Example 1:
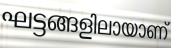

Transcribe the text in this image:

ഘട്ടങ്ങളിലായാണ്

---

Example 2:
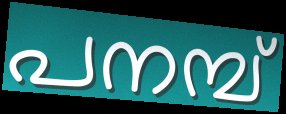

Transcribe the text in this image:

പനമ്പ്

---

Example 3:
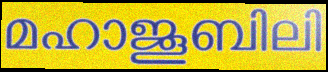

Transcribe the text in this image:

മഹാജൂബിലി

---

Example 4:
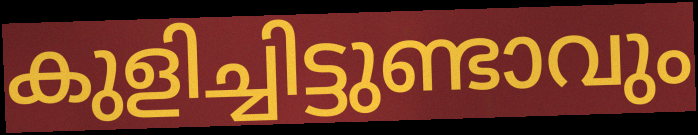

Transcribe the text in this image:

കുളിച്ചിട്ടുണ്ടാവും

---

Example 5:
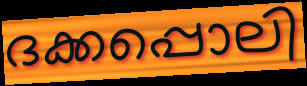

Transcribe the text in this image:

ദക്കപ്പൊലി